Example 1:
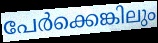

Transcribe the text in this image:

പേർക്കെങ്കിലും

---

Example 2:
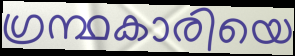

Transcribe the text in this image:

ഗ്രന്ഥകാരിയെ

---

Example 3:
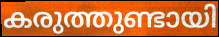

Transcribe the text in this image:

കരുത്തുണ്ടായി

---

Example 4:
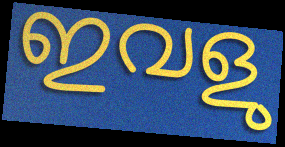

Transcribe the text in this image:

ഇവളു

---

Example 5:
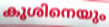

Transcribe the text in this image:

കൂശിനെയും